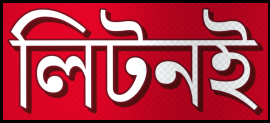
লিটনই